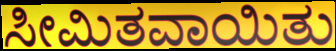
ಸೀಮಿತವಾಯಿತು